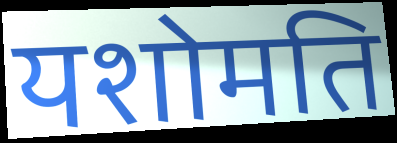
यशोमति